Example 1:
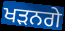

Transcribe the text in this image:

ਖੜਨਗੇ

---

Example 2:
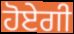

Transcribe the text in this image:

ਹੋਏਗੀ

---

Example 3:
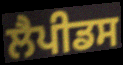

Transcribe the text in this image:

ਲੈਪੀਡਸ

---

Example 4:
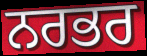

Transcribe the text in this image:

ਨਰਭਰ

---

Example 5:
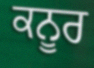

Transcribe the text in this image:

ਕਨੂਰ